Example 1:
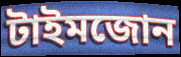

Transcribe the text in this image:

টাইমজোন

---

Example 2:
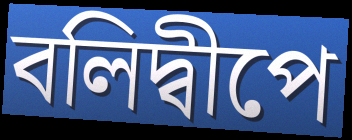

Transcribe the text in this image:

বলিদ্বীপে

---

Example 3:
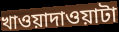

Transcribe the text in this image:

খাওয়াদাওয়াটা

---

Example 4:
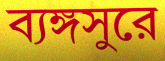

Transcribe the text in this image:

ব্যঙ্গসুরে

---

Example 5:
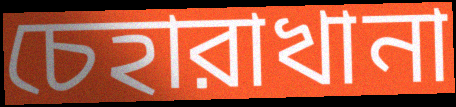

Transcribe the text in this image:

চেহারাখানা